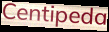
Centipeda